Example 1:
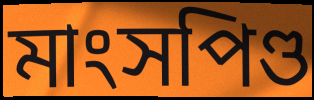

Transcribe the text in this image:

মাংসপিণ্ড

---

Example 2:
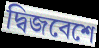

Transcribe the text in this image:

দ্বিজবেশে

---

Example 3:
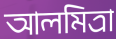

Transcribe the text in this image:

আলমিত্রা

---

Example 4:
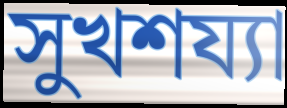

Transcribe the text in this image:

সুখশয্যা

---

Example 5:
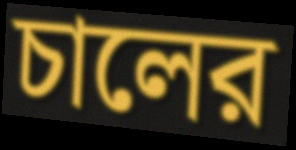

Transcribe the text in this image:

চালের